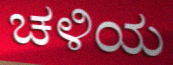
ಚಳಿಯ